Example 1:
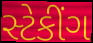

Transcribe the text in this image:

સ્ટેકીંગ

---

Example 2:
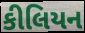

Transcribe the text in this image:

કીલિયન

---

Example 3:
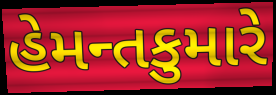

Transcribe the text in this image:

હેમન્તકુમારે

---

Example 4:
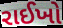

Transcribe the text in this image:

રાઈખો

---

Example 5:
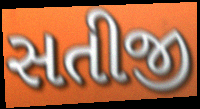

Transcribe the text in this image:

સતીજી